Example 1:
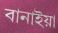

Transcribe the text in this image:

বানাইয়া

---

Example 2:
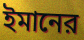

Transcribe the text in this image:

ইমানের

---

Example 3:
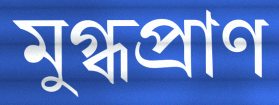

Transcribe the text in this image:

মুগ্ধপ্রাণ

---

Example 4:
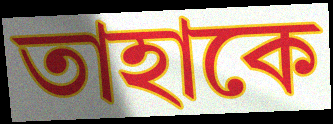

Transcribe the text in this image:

তাহাকে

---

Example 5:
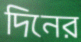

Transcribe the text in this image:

দিনের